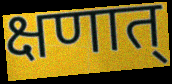
क्षणात्